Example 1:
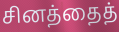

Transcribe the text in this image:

சினத்தைத்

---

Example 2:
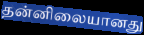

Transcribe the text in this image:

தன்னிலையானது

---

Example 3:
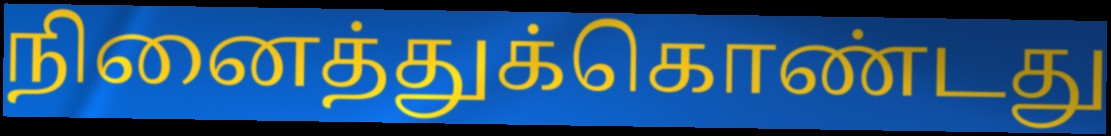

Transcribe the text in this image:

நினைத்துக்கொண்டது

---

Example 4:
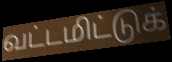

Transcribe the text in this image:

வட்டமிட்டுக்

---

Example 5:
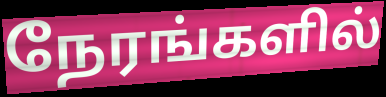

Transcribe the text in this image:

நேரங்களில்